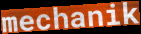
mechanik